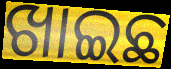
ଖାଇଛ